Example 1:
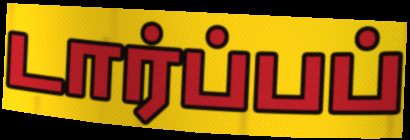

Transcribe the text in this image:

டார்ப்பப்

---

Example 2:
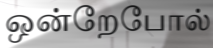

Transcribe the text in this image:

ஒன்றேபோல்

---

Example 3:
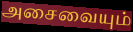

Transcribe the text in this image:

அசைவையும்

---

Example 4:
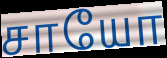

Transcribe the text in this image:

சாயோ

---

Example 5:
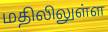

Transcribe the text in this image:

மதிலிலுள்ள